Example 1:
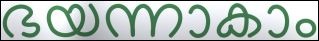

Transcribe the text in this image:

ഭയന്നാകാം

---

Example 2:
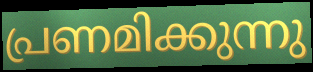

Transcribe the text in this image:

പ്രണമിക്കുന്നു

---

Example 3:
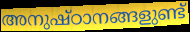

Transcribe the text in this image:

അനുഷ്ഠാനങ്ങളുണ്ട്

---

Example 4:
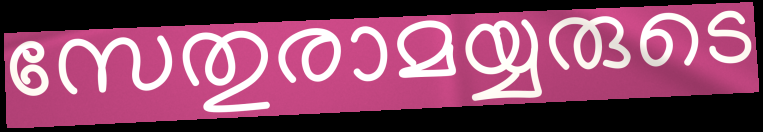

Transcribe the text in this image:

സേതുരാമയ്യരുടെ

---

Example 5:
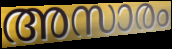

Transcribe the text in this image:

അസാരം